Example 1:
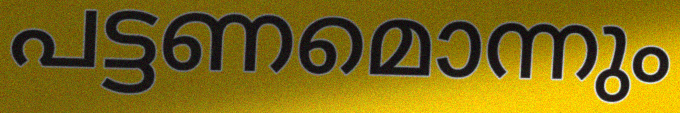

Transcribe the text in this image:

പട്ടണമൊന്നും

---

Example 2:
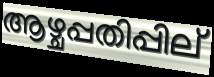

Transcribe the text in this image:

ആഴ്ചപ്പതിപ്പില്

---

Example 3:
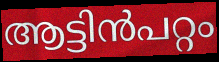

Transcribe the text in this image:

ആട്ടിൻപറ്റം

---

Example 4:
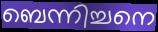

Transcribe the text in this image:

ബെന്നിച്ചനെ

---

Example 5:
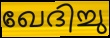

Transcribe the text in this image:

ഖേദിച്ചു